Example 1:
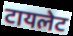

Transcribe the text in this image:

टायलेट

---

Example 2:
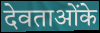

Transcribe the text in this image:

देवताओंके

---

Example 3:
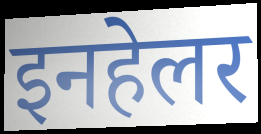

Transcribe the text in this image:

इनहेलर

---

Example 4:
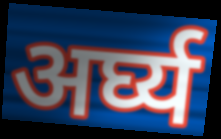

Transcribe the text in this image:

अर्घ्य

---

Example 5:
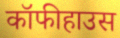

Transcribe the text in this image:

कॉफीहाउस